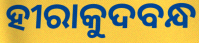
ହୀରାକୁଦବନ୍ଧ